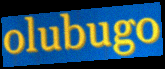
olubugo